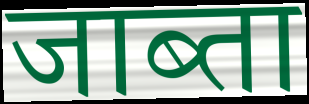
जाब्ता